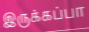
இருக்கப்பா